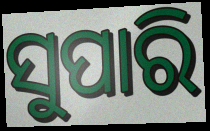
ସୁପାରି